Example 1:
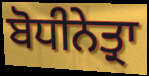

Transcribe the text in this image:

ਬੋਧੀਨੇਤ੍ਰਾ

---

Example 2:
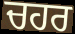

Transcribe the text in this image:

ਚਹਰ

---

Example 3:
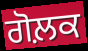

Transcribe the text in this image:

ਗੋਲ਼ਕ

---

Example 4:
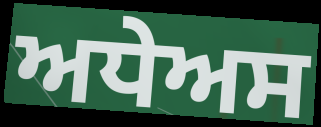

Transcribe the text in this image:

ਅਧੇਅਸ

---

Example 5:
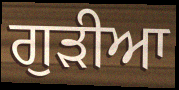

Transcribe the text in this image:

ਗੁਡ਼ੀਆ